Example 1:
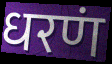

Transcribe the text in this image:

धरणं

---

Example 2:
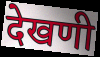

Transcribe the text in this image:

देखणी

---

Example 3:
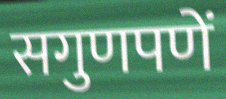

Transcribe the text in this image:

सगुणपणें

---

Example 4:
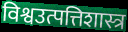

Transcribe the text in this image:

विश्वउत्पत्तिशास्त्र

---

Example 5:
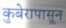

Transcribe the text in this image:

कुबेरापासून